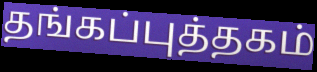
தங்கப்புத்தகம்